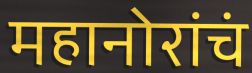
महानोरांचं